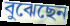
বুঝেছেন